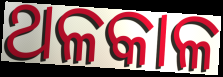
ଥଳକାଳ